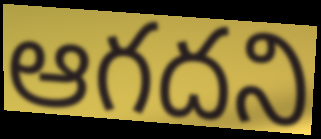
ఆగదని